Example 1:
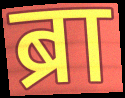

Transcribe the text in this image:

ब्रा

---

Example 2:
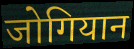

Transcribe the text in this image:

जोगियान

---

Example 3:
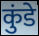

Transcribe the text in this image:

कुंडे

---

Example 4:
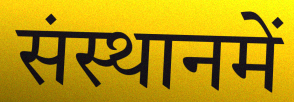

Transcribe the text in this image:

संस्थानमें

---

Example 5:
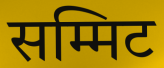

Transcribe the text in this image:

सम्मिट